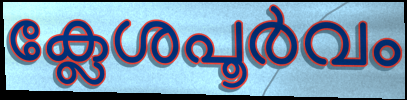
ക്ലേശപൂർവം